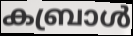
കബ്രാൾ